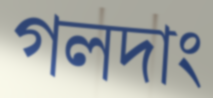
গলদাং